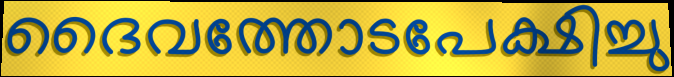
ദൈവത്തോടപേക്ഷിച്ചു